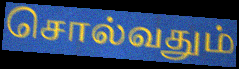
சொல்வதும்